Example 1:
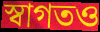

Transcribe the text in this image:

স্বাগতও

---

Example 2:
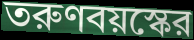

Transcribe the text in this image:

তরুণবয়স্কের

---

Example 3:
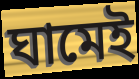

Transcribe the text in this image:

ঘামেই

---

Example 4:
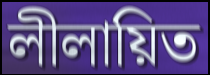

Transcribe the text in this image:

লীলায়িত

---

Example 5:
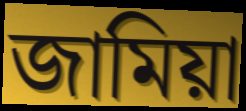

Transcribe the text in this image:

জামিয়া